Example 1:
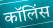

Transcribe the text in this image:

कॉलिंस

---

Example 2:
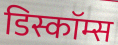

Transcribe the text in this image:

डिस्कॉम्स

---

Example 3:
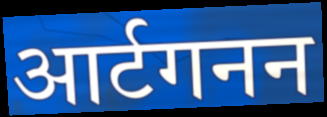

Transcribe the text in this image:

आर्टगनन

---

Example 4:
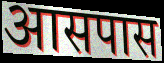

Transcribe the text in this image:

आसपास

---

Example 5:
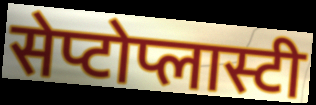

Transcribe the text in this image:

सेप्टोप्लास्टी